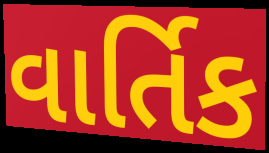
વાર્તિક